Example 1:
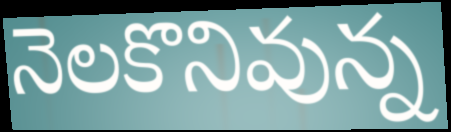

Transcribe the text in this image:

నెలకొనివున్న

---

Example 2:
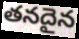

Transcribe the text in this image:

తనదైన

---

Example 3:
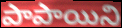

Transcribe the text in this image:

పాపాయిని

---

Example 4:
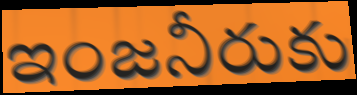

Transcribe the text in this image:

ఇంజనీరుకు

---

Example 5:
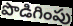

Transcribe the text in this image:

పొడిగింపు